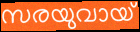
സരയുവായ്